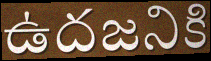
ఉదజనికి